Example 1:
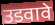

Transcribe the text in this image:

उडवावे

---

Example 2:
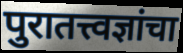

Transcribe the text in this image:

पुरातत्त्वज्ञांचा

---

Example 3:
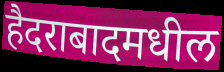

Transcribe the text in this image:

हैदराबादमधील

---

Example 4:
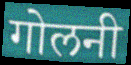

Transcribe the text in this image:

गोलनी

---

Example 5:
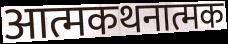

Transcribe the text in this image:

आत्मकथनात्मक